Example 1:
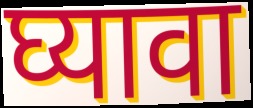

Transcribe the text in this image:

घ्यावा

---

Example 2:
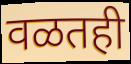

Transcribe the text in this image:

वळतही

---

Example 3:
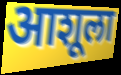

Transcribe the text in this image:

आशूला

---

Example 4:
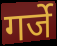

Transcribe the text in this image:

गर्जे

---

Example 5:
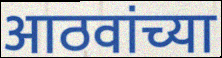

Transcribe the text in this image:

आठवांच्या